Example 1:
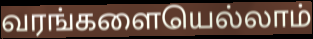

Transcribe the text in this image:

வரங்களையெல்லாம்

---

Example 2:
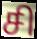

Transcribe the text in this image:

சி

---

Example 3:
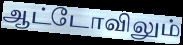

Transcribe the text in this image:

ஆட்டோவிலும்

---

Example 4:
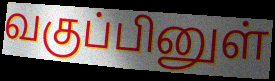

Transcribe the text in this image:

வகுப்பினுள்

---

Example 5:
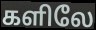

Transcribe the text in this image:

களிலே